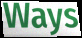
Ways